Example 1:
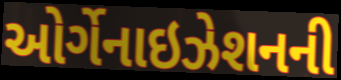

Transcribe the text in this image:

ઓર્ગેનાઇઝેશનની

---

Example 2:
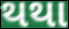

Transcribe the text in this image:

થથા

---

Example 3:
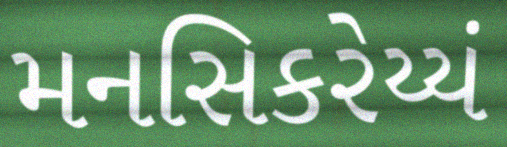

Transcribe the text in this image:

મનસિકરેય્યં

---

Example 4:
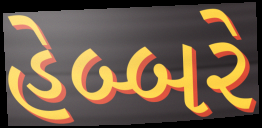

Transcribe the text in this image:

હેબ્બરે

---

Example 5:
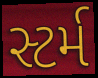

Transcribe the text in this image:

સ્ટર્મ